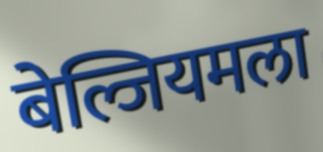
बेल्जियमला